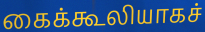
கைக்கூலியாகச்